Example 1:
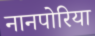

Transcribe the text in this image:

नानपोरिया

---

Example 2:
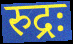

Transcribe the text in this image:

रुद्रः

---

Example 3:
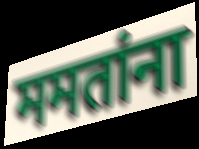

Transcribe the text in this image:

ममतांना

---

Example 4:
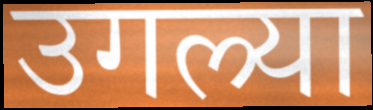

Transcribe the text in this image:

उगल्या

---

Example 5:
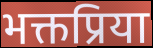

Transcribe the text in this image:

भक्तप्रिया